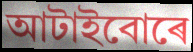
আটাইবোৰে